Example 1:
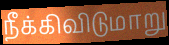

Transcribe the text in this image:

நீக்கிவிடுமாறு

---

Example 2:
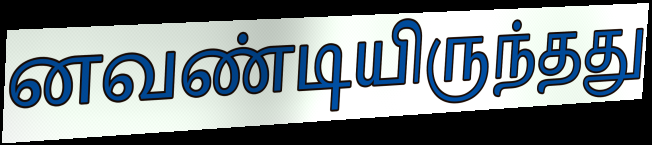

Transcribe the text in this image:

னவண்டியிருந்தது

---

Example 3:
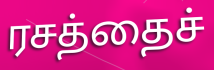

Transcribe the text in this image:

ரசத்தைச்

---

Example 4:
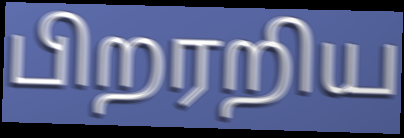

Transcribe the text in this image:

பிறரறிய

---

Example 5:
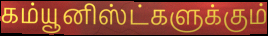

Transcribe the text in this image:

கம்யூனிஸ்ட்களுக்கும்